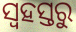
ସ୍ୱହସ୍ତରୁ